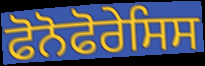
ਫੋਨੋਫੋਰੇਸਿਸ